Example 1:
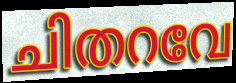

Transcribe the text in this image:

ചിതറവേ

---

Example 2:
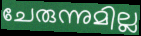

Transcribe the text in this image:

ചേരുന്നുമില്ല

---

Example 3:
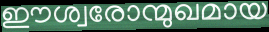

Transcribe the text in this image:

ഈശ്വരോന്മുഖമായ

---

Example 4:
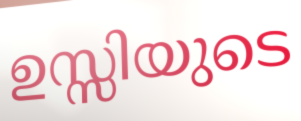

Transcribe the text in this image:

ഉസ്സിയുടെ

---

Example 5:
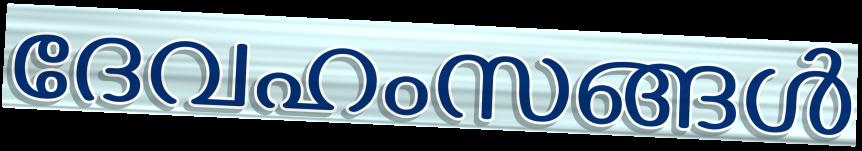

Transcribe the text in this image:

ദേവഹംസങ്ങൾ